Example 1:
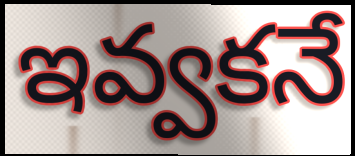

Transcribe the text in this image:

ఇవ్వకనే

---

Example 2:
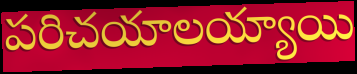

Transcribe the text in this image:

పరిచయాలయ్యాయి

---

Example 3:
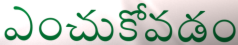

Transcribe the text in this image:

ఎంచుకోవడం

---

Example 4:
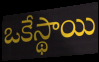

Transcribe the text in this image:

ఒకేస్థాయి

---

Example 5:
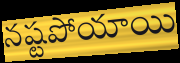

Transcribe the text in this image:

నష్టపోయాయి